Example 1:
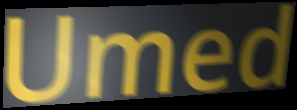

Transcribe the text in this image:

Umed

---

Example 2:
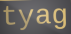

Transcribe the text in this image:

tyag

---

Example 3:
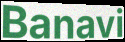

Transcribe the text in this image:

Banavi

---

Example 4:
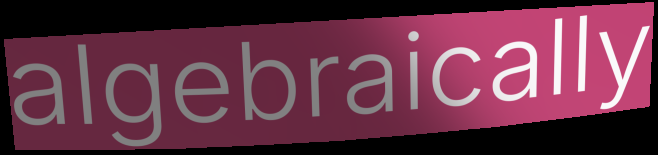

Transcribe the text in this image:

algebraically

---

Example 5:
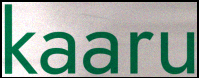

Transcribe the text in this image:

kaaru